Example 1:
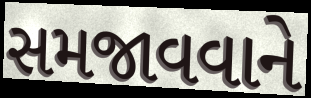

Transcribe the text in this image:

સમજાવવાને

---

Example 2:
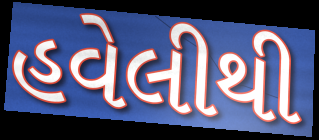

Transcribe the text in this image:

હવેલીથી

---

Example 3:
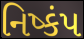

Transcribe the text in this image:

નિષ્કંપ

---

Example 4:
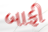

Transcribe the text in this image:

બાફી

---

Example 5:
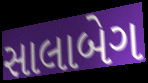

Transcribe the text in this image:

સાલાબેગ